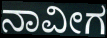
ನಾವೀಗ